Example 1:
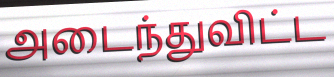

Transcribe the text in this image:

அடைந்துவிட்ட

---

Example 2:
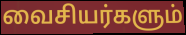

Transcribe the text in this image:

வைசியர்களும்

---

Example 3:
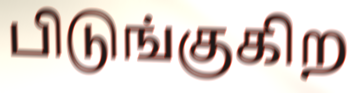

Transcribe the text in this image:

பிடுங்குகிற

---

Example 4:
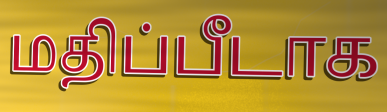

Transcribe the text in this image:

மதிப்பீடாக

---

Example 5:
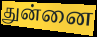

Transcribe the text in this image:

துன்னை